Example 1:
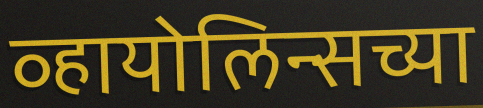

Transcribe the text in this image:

व्हायोलिन्सच्या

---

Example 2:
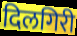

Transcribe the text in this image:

दिलगिरी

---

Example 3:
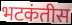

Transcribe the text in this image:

भटकंतीस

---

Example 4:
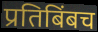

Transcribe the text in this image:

प्रतिबिंबच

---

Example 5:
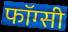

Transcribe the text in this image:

फॉग्सी